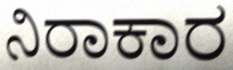
ನಿರಾಕಾರ